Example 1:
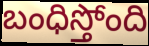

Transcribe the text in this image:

బంధిస్తోంది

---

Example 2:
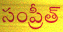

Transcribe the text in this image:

సంప్రీత్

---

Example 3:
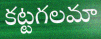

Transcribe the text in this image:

కట్టగలమా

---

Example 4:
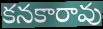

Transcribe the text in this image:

కనకారావు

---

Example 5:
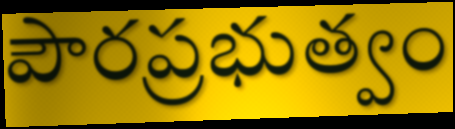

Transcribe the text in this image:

పౌరప్రభుత్వం